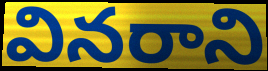
వినరాని